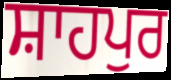
ਸ਼ਾਹਪੁਰ